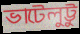
ভাটেলুট্টু